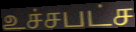
உச்சபட்ச